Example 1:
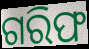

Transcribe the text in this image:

ଗରିଫ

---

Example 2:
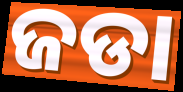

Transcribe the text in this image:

ଜଡା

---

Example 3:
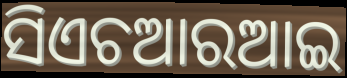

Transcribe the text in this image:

ସିଏଚଆରଆଇ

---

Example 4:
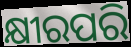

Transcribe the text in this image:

କ୍ଷୀରପରି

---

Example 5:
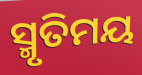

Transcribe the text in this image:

ସ୍ମୃତିମୟ